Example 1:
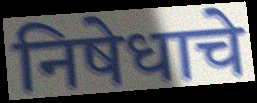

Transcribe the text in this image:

निषेधाचे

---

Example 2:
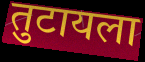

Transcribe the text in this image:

तुटायला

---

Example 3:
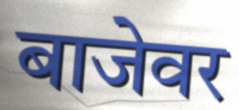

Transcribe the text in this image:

बाजेवर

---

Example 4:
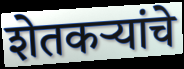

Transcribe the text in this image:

शेतकऱ्यांचे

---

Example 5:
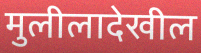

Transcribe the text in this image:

मुलीलादेखील